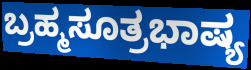
ಬ್ರಹ್ಮಸೂತ್ರಭಾಷ್ಯ